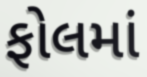
ફોલમાં